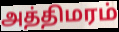
அத்திமரம்